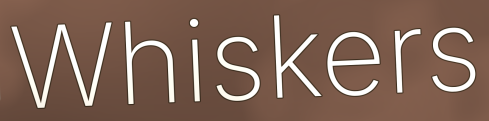
Whiskers